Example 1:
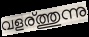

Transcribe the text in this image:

വളര്ത്തുന്നു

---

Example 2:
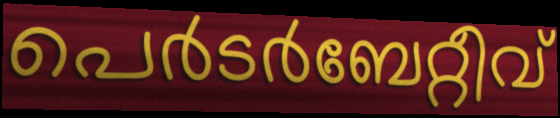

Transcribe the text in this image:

പെർടർബേറ്റീവ്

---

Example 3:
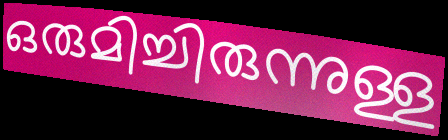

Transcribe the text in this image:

ഒരുമിച്ചിരുന്നുള്ള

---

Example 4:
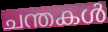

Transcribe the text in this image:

ചന്തകൾ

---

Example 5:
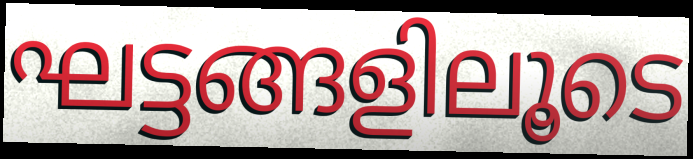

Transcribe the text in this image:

ഘട്ടങ്ങളിലൂടെ